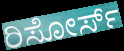
ರಿಸೋರ್ಸ್